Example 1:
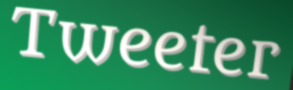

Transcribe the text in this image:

Tweeter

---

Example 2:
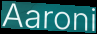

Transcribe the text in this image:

Aaroni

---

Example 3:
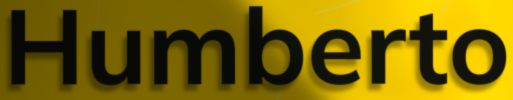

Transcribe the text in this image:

Humberto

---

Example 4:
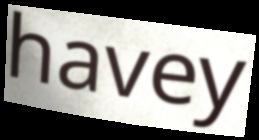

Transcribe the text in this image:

havey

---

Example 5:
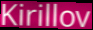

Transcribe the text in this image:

Kirillov